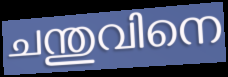
ചന്തുവിനെ